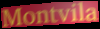
Montvila